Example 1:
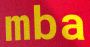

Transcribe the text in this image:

mba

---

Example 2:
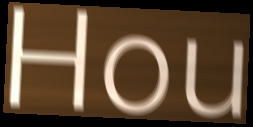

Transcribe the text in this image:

Hou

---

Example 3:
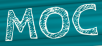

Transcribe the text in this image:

MOC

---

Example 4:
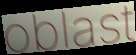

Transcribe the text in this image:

oblast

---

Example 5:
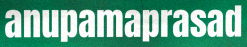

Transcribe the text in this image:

anupamaprasad